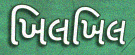
ખિલખિલ